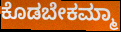
ಕೊಡಬೇಕಮ್ಮಾ